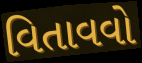
વિતાવવો